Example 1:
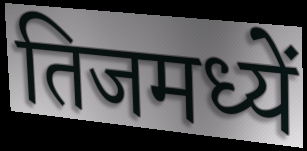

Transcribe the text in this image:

तिजमध्यें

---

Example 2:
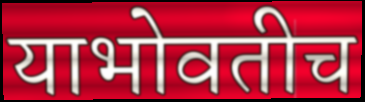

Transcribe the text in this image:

याभोवतीच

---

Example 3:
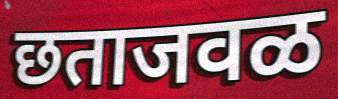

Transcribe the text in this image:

छताजवळ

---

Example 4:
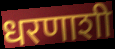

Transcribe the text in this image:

धरणाशी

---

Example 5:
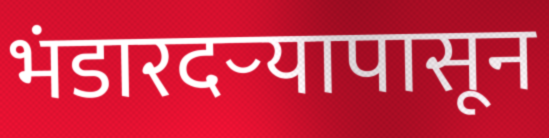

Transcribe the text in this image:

भंडारदऱ्यापासून